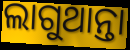
ଲାଗୁଥାନ୍ତା